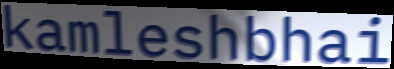
kamleshbhai